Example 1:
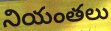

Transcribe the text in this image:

నియంతలు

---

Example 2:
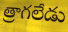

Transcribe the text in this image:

త్రాగలేడు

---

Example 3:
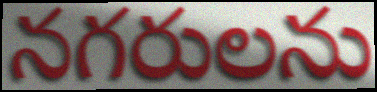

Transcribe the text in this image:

నగరులను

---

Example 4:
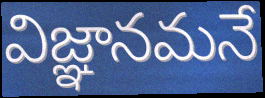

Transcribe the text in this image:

విజ్ఞానమనే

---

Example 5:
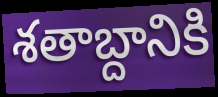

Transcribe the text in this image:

శతాబ్దానికి